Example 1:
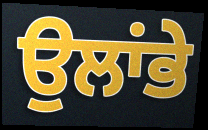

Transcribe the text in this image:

ਉਲਾਂਭੇ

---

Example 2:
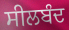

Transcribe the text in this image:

ਸੀਲਬੰਦ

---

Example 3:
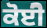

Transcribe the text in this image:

ਕੋਈੋ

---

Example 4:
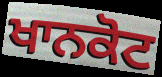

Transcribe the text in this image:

ਖਾਨਕੋਟ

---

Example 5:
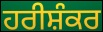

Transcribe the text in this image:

ਹਰੀਸ਼ੰਕਰ